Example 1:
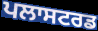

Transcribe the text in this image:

ਪਲਾਸਟਰਡ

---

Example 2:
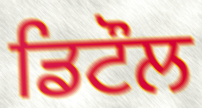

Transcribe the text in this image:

ਡਿਟੌਲ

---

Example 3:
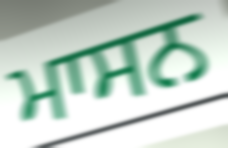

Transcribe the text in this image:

ਮਾਸਨ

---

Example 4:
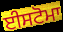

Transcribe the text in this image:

ਈਸਟੋਮਾ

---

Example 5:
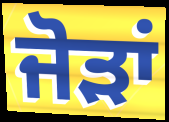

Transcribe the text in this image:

ਜੋਡ਼ਾਂ